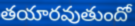
తయారవుతుందో